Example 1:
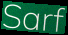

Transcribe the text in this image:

Sarf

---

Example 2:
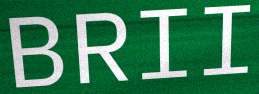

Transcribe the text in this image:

BRII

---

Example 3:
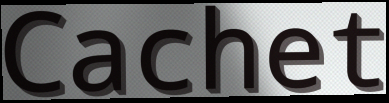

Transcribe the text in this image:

Cachet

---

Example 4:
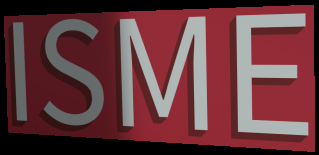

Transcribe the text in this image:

ISME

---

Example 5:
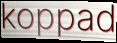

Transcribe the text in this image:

koppad